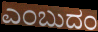
ಎಂಬುದಂ